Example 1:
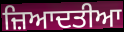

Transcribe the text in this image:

ਜ਼ਿਆਦਤੀਆ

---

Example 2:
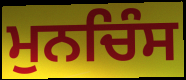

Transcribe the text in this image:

ਮੁਨਚਿੰਸ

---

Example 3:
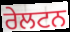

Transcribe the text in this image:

ਰੇਲਟਨ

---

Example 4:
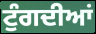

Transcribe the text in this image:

ਟੁੰਗਦੀਆਂ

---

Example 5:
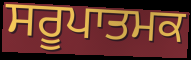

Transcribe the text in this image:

ਸਰੂਪਾਤਮਕ